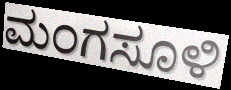
ಮಂಗಸೂಳಿ